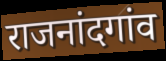
राजनांदगांव